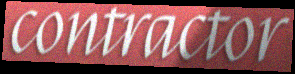
contractor